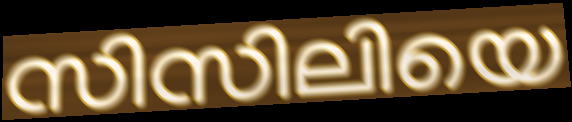
സിസിലിയെ